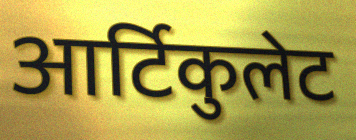
आर्टिकुलेट